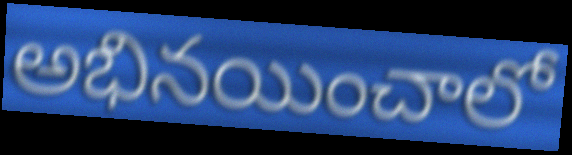
అభినయించాలో